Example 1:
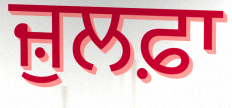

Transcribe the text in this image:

ਜ਼ੁਲਫ਼ਾ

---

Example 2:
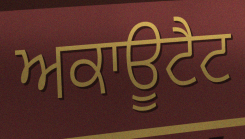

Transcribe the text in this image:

ਅਕਾਊਟੈਟ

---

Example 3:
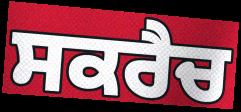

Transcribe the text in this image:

ਸਕਰੈਚ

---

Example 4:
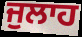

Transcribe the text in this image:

ਜੁਲਾਹ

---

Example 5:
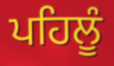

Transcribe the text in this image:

ਪਹਿਲੂੰ